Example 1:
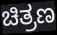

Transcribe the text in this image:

ಚಿತ್ರಣ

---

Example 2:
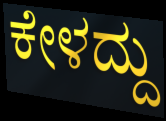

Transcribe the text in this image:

ಕೇಳದ್ದು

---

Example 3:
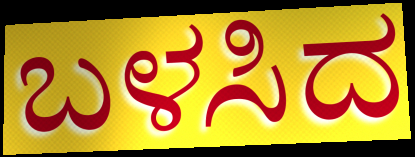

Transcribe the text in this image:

ಬಳಸಿದ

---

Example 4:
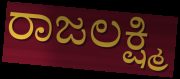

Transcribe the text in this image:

ರಾಜಲಕ್ಷ್ಮಿ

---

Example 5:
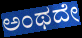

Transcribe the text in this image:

ಅಂಥದೇ